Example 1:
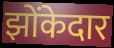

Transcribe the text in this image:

झोंकेदार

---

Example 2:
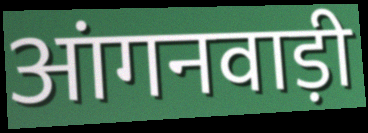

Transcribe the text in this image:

आंगनवाड़ी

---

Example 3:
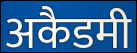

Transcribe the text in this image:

अकैडमी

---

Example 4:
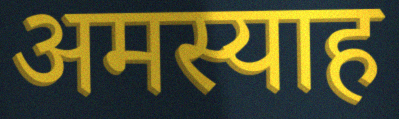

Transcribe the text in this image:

अमस्याह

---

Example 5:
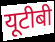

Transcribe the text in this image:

यूटीबी